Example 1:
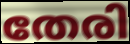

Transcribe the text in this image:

തേരി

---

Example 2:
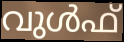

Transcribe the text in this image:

വുൾഫ്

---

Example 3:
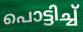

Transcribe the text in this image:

പൊട്ടിച്ച്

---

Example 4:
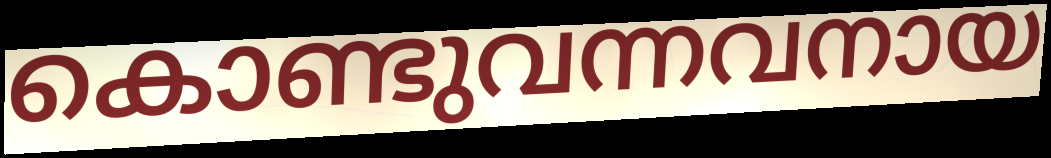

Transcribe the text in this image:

കൊണ്ടുവന്നവനായ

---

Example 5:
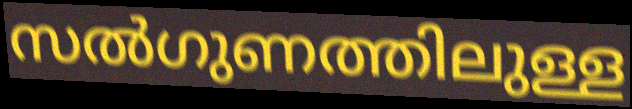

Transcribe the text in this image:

സൽഗുണത്തിലുള്ള